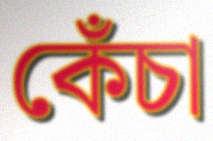
কেঁচা